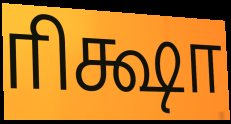
ரிக்ஷா